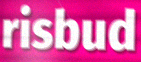
risbud